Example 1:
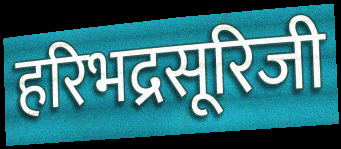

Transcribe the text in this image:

हरिभद्रसूरिजी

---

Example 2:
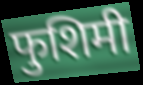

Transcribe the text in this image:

फुशिमी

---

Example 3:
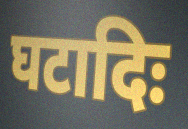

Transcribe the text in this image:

घटादिः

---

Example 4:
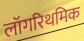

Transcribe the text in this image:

लॉगरिथमिक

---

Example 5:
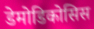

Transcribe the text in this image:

डेमोडिकोसिस